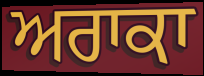
ਅਰਾਕਾ